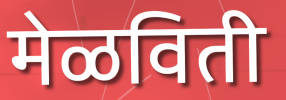
मेळविती